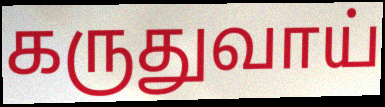
கருதுவாய்